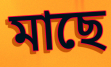
মাছে